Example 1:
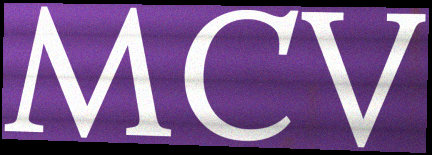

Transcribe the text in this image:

MCV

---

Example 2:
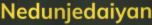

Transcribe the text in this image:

Nedunjedaiyan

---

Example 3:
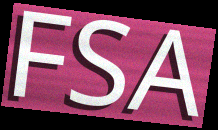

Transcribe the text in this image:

FSA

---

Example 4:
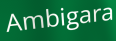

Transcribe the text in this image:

Ambigara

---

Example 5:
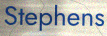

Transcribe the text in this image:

Stephens